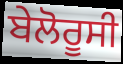
ਬੇਲੋਰੂਸੀ